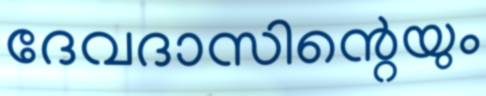
ദേവദാസിന്റെയും